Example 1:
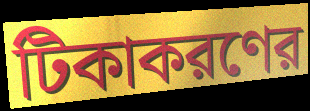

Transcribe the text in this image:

টিকাকরণের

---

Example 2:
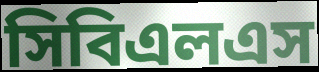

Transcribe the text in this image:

সিবিএলএস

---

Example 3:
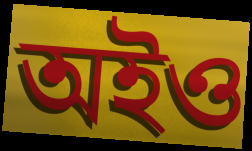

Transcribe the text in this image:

অইও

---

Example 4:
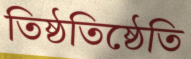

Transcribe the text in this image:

তিষ্ঠতিষ্ঠেতি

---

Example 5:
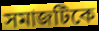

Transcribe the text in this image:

সমাজটিকে